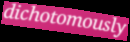
dichotomously